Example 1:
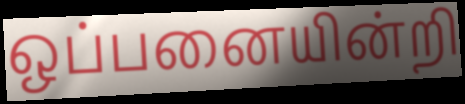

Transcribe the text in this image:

ஒப்பனையின்றி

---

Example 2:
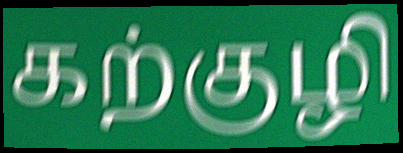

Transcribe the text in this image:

கற்குழி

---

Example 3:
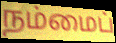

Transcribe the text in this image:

நம்மைப்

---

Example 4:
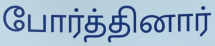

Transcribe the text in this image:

போர்த்தினார்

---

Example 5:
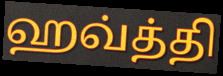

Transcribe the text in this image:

ஹவ்த்தி